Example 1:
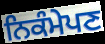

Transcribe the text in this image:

ਨਿਕੰਮੇਪਣ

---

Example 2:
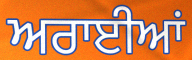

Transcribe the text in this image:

ਅਰਾਈਆਂ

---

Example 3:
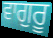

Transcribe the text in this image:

ਵਾਗੁਰੂ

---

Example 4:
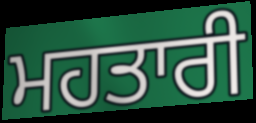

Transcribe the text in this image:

ਮਹਤਾਰੀ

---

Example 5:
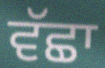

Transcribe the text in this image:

ਵੱਛਾ